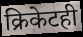
क्रिकेटही